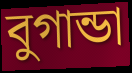
বুগান্ডা